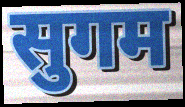
सुगम